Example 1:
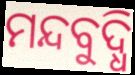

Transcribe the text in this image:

ମନ୍ଦବୁଦ୍ଧି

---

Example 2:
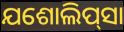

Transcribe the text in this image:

ଯଶୋଲିପ୍‌ସା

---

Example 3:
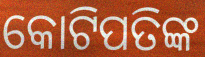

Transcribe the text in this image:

କୋଟିପତିଙ୍କ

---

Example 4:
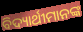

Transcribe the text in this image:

ବିଦ୍ୟାର୍ଥୀମାନଙ୍କ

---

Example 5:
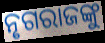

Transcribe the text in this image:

ନୃଗରାଜଙ୍କୁ